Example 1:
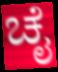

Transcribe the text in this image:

ಚೈ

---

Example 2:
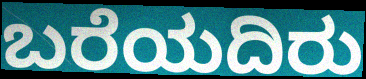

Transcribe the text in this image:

ಬರೆಯದಿರು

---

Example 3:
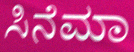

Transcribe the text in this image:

ಸಿನೆಮಾ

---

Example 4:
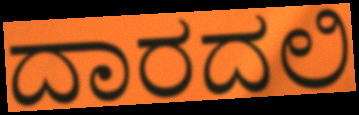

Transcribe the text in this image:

ದಾರದಲಿ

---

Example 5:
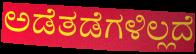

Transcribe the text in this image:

ಅಡೆತಡೆಗಳಿಲ್ಲದೆ